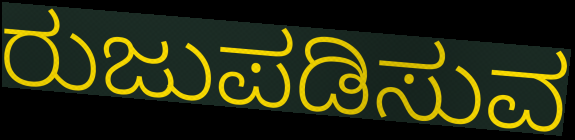
ರುಜುಪಡಿಸುವ